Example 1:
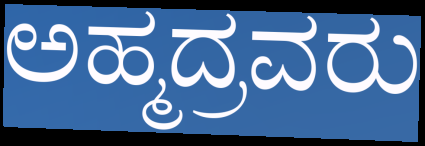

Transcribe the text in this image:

ಅಹ್ಮದ್ರವರು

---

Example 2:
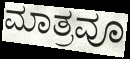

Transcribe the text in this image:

ಮಾತ್ರವೂ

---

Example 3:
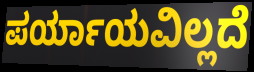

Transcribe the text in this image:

ಪರ್ಯಾಯವಿಲ್ಲದೆ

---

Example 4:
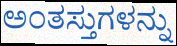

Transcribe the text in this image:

ಅಂತಸ್ತುಗಳನ್ನು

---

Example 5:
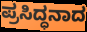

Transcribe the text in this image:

ಪ್ರಸಿದ್ಧನಾದ